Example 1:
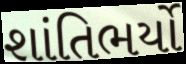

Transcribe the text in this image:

શાંતિભર્યો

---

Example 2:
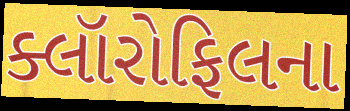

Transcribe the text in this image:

ક્લૉરોફિલના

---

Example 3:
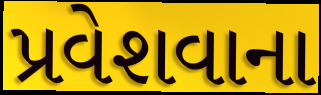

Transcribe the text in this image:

પ્રવેશવાના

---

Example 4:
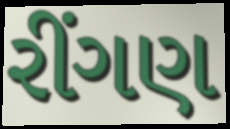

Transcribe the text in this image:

રીંગણ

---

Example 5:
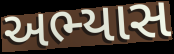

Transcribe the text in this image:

અભ્યાસ